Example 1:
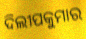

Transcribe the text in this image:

ଦିଲୀପକୁମାର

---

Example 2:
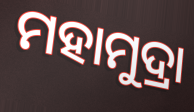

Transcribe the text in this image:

ମହାମୁଦ୍ରା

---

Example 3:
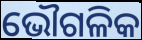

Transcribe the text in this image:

ଭୌଗଳିକ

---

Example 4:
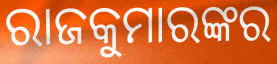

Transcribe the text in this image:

ରାଜକୁମାରଙ୍କର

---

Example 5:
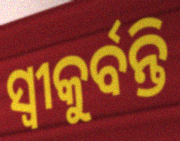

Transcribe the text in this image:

ସ୍ଵୀକୁର୍ବନ୍ତି